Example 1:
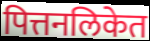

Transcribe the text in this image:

पित्तनलिकेत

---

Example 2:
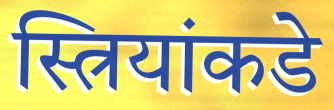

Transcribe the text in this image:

स्त्रियांकडे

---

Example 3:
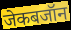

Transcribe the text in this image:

जेकबजॉन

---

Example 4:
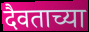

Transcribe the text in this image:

दैवताच्या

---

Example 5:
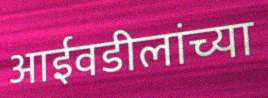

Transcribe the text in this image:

आईवडीलांच्या